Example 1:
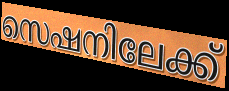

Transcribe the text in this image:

സെഷനിലേക്ക്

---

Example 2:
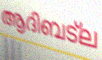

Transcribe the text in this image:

ആദിബട്ല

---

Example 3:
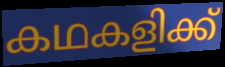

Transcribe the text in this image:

കഥകളിക്ക്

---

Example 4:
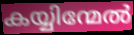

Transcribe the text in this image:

കയ്യിന്മേൽ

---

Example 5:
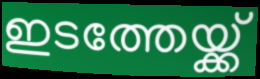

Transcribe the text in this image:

ഇടത്തേയ്ക്ക്